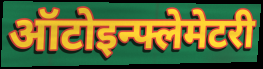
ऑटोइन्फ्लेमेटरी